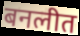
बनलीत